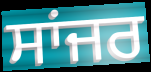
ਸਾਂਜਰ